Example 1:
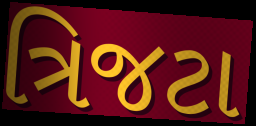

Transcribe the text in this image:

ત્રિજટા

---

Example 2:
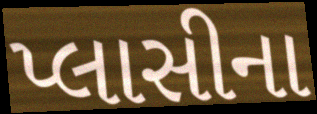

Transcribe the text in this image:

પ્લાસીના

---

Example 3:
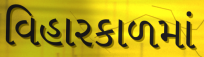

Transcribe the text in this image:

વિહારકાળમાં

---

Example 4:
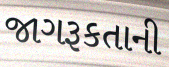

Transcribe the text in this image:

જાગરૂકતાની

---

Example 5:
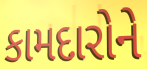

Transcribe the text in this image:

કામદારોને